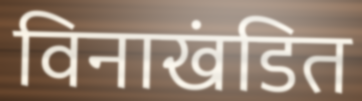
विनाखंडित